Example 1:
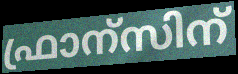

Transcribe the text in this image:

ഫ്രാന്സിന്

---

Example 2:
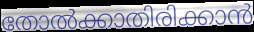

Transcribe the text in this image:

തോൽക്കാതിരിക്കാൻ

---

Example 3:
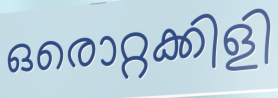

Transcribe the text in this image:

ഒരൊറ്റക്കിളി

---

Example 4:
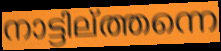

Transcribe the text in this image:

നാട്ടില്ത്തന്നെ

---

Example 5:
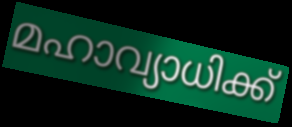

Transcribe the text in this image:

മഹാവ്യാധിക്ക്